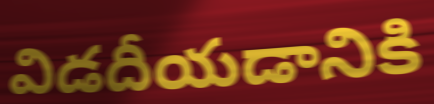
విడదీయడానికి